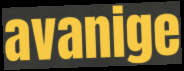
avanige